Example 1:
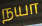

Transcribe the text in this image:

நயா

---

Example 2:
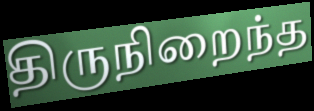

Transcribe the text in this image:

திருநிறைந்த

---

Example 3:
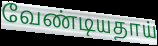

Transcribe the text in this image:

வேண்டியதாய்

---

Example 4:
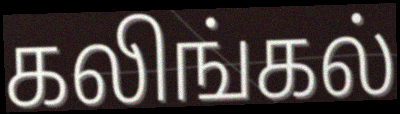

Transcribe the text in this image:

கலிங்கல்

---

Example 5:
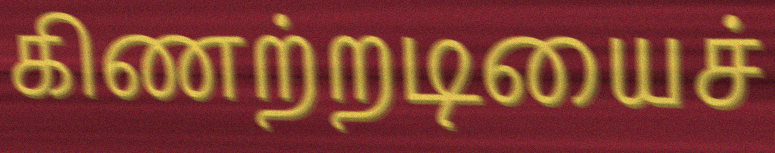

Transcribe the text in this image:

கிணற்றடியைச்